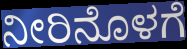
ನೀರಿನೊಳಗೆ